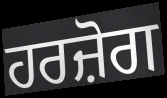
ਹਰਜ਼ੋਗ